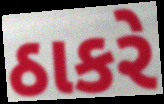
ઠાકરે